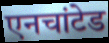
एनचांटेड